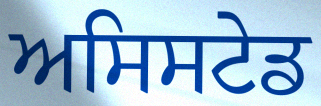
ਅਸਿਸਟੇਡ